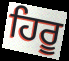
ਹਿਰੂ